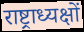
राष्ट्राध्यक्षों